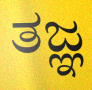
ತಜ್ಞ